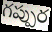
గప్పుర